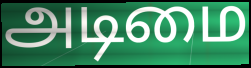
அடிமை